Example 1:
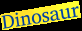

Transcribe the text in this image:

Dinosaur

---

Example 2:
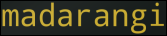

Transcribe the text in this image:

madarangi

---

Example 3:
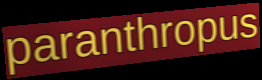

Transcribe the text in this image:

paranthropus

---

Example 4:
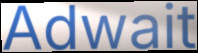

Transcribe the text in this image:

Adwait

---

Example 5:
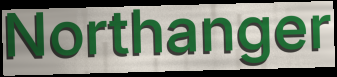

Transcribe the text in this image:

Northanger